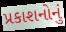
પ્રકાશનોનું